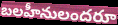
బలహీనులందరూ